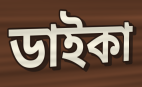
ডাইকা